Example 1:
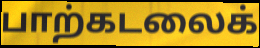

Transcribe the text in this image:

பாற்கடலைக்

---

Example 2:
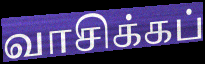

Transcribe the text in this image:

வாசிக்கப்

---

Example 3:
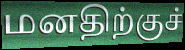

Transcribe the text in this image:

மனதிற்குச்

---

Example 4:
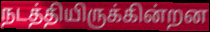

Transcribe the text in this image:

நடத்தியிருக்கின்றன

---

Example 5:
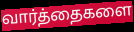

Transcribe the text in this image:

வார்த்தைகளை